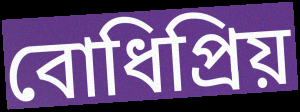
বোধিপ্রিয়